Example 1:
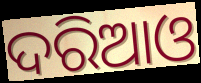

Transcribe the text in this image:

ଦରିଆଓ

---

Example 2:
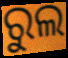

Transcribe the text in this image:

ରୁଲ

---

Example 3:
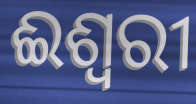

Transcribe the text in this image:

ଈଶ୍ଵରୀ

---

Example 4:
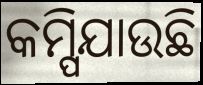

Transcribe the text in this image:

କମ୍ପିଯାଉଛି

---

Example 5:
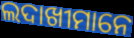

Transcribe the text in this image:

ଲଦାଖୀମାନେ